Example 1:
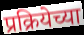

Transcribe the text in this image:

प्रक्रियेच्या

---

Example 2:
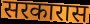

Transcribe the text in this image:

सरकारास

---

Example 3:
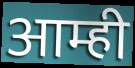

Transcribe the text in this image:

आम्‍ही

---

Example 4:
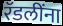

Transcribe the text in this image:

रॅडलींना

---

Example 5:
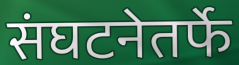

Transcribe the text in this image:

संघटनेतर्फे